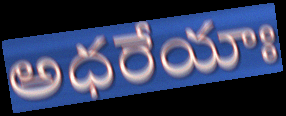
అధరేయాః